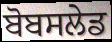
ਬੋਬਸਲੇਡ